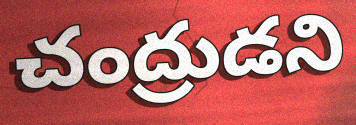
చంద్రుడని